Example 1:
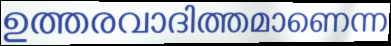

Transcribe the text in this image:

ഉത്തരവാദിത്തമാണെന്ന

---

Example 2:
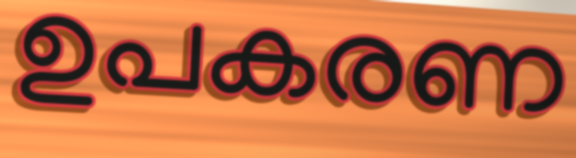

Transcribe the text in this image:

ഉപകരണ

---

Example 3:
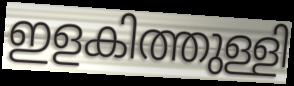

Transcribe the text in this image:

ഇളകിത്തുള്ളി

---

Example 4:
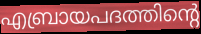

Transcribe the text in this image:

എബ്രായപദത്തിന്റെ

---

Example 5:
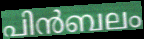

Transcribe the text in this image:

പിൻബലം